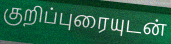
குறிப்புரையுடன்